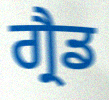
ਗ੍ਰੈਡ